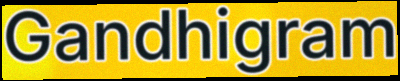
Gandhigram